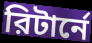
রিটার্নে